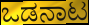
ಒಡನಾಟ